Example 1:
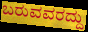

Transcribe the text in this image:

ಬರುವವರದ್ದು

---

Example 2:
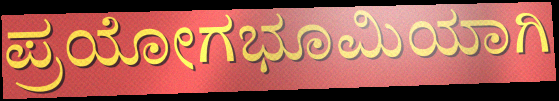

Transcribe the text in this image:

ಪ್ರಯೋಗಭೂಮಿಯಾಗಿ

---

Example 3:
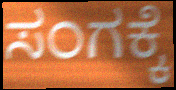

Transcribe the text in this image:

ಸಂಗಕ್ಕೆ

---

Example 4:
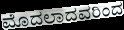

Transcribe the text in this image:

ಮೊದಲಾದವರಿಂದ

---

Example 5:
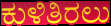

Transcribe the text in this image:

ಕುಳಿತಿರಲು